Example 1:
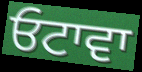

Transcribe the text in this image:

ਓਟਾਵਾ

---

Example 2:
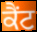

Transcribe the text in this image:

ਕੈਂਟ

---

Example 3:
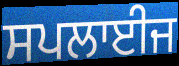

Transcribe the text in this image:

ਸਪਲਾਈਜ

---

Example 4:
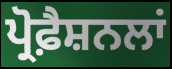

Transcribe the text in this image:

ਪ੍ਰੋਫ਼ੈਸ਼ਨਲਾਂ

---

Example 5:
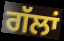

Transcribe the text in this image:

ਗੱਲਾਂ